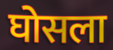
घोसला